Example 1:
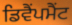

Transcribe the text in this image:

ਡਿਵੈਂਪਮੈਂਟ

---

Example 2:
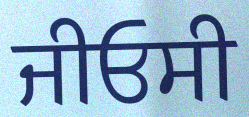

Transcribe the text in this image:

ਜੀਓਸੀ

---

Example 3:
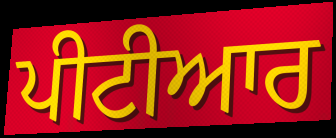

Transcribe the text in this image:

ਪੀਟੀਆਰ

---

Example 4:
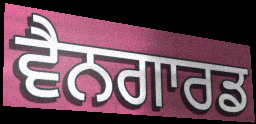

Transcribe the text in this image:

ਵੈਨਗਾਰਡ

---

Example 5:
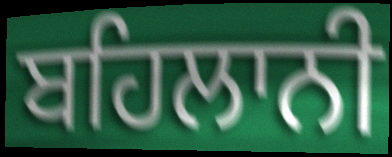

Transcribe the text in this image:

ਬਹਿਲਾਨੀ